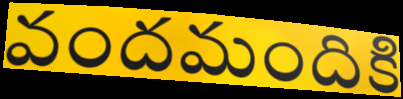
వందమందికి